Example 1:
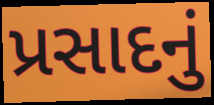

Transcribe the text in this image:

પ્રસાદનું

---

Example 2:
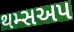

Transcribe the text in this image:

થમ્સઅપ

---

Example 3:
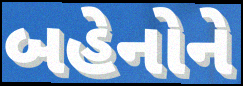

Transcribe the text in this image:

બહેનોને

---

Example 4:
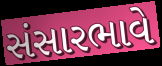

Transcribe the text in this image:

સંસારભાવે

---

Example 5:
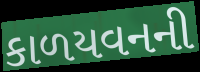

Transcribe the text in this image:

કાળયવનની